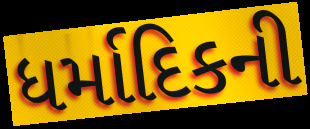
ધર્માદિકની